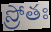
స్రోతః